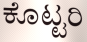
ಕೊಟ್ಟರಿ